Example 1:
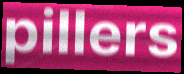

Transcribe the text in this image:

pillers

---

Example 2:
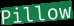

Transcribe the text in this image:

Pillow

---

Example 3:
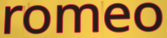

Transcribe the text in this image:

romeo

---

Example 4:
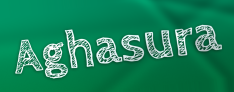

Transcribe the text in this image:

Aghasura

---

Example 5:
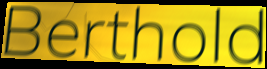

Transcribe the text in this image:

Berthold